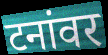
टनांवर